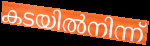
കടയിൽനിന്ന്